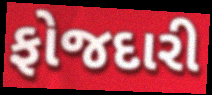
ફોજદારી